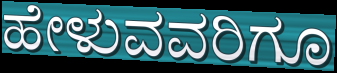
ಹೇಳುವವರಿಗೂ